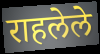
राहलेले